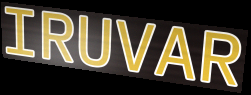
IRUVAR